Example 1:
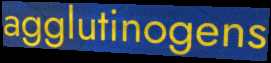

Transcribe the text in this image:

agglutinogens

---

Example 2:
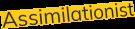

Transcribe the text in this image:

Assimilationist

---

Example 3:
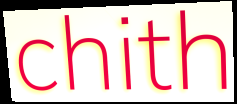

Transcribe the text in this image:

chith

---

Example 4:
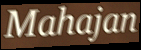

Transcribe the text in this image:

Mahajan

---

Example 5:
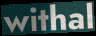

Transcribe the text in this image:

withal